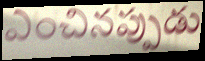
ఎంచినప్పుడు